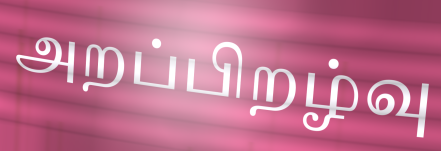
அறப்பிறழ்வு